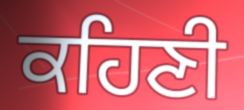
ਕਹਿਣੀ